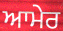
ਆਮੇਰ